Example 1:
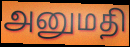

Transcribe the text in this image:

அனுமதி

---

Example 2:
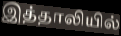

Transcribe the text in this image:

இத்தாலியில்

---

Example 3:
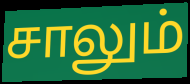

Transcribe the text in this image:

சாலும்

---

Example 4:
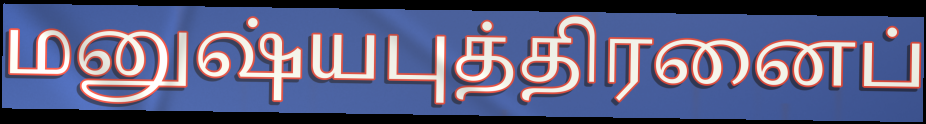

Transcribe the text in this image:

மனுஷ்யபுத்திரனைப்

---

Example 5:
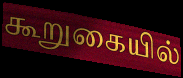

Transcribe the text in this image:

கூறுகையில்